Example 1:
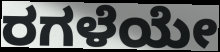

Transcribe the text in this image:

ರಗಳೆಯೇ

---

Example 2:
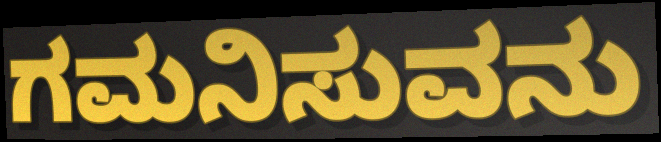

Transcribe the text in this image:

ಗಮನಿಸುವನು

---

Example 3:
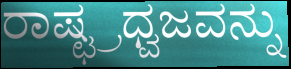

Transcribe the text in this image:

ರಾಷ್ಟ್ರಧ್ವಜವನ್ನು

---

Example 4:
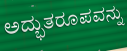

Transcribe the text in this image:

ಅದ್ಭುತರೂಪವನ್ನು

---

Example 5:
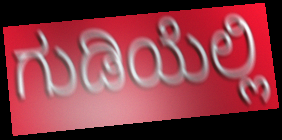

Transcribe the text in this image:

ಗುಡಿಯೆಲ್ಲಿ